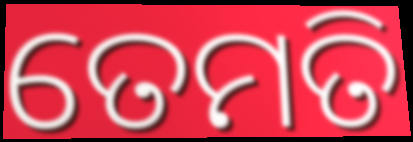
ତେମତି